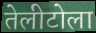
तेलीटोला